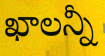
ఖాలన్నీ